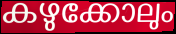
കഴുക്കോലും